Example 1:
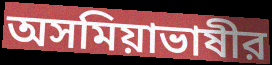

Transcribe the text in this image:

অসমিয়াভাষীর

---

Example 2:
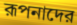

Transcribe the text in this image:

রূপনাদের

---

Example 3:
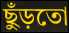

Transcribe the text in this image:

ছুঁড়তো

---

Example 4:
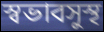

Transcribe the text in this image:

স্বভাবসুস্থ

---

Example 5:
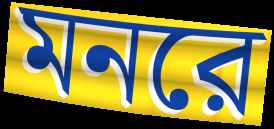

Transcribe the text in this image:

মনরে